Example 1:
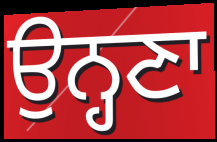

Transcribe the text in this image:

ਉਨ੍ਹਣਾ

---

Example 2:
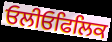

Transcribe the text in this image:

ਓਲੀਓਫਿਲਿਕ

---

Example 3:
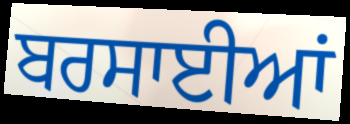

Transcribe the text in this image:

ਬਰਸਾਈਆਂ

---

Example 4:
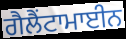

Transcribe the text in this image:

ਗੈਲੈਂਟਾਮਾਈਨ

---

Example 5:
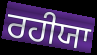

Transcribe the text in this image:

ਰਹੀਯਾ